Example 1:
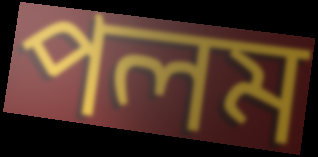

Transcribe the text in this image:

পলম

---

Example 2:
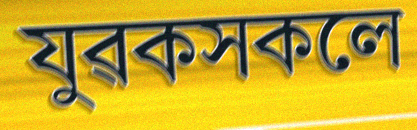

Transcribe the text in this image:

যুৱকসকলে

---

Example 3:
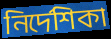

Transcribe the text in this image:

নিৰ্দেশিকা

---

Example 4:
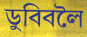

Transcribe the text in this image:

ডুবিবলৈ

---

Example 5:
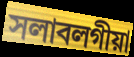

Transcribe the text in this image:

সলাবলগীয়া